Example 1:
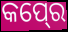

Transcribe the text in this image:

କପ୍‍ରେ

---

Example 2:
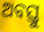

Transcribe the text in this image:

ଅବସ୍ତୁ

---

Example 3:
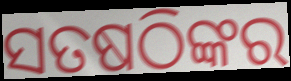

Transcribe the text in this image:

ସତଷଠିଙ୍କର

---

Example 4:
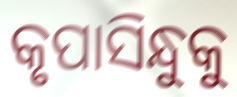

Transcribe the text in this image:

କୃପାସିନ୍ଧୁକୁ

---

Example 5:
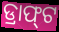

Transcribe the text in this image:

ଡ୍ରାଫ୍‍ଟ